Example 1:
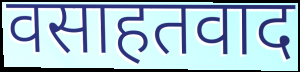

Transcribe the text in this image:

वसाहतवाद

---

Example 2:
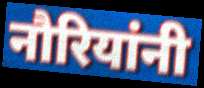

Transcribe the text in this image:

नौरियांनी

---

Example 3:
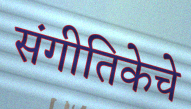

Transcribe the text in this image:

संगीतिकेचे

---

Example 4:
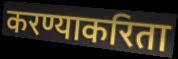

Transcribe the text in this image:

करण्याकरिता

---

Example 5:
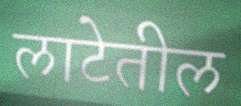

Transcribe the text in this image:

लाटेतील